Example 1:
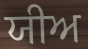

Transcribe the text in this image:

ਯੀਅ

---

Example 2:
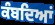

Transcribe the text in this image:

ਕੰਬਦਿਆਂ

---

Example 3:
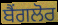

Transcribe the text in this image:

ਬੈਂਗਲੋਰ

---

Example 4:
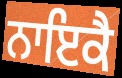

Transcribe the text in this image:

ਨਾਇਕੈ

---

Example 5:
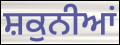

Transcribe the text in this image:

ਸ਼ਕੁਨੀਆਂ